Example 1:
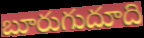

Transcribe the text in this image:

బూరుగుదూది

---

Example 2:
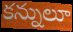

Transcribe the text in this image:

కన్నులూ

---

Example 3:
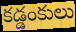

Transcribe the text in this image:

కడ్డంకులు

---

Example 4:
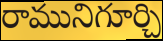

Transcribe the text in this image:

రామునిగూర్చి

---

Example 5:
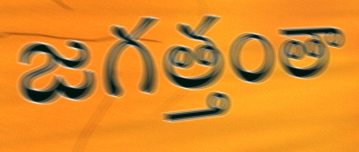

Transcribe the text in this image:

జగత్తంతా